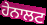
ਹੇਨਾਲਟ